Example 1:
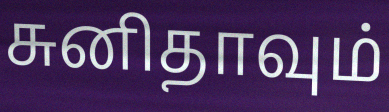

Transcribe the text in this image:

சுனிதாவும்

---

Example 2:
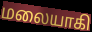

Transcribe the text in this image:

மலையாகி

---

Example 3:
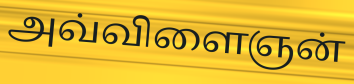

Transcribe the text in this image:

அவ்விளைஞன்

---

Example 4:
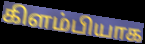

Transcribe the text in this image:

கிளம்பியாக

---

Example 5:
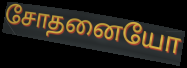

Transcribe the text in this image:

சோதனையோ